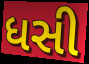
ધસી